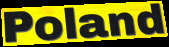
Poland